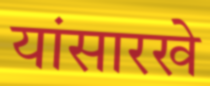
यांसारखे